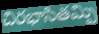
చిరభాసితమ్పి